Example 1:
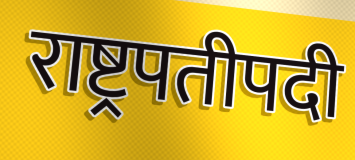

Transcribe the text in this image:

राष्ट्रपतीपदी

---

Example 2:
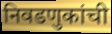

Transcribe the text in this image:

निवडणुकांची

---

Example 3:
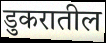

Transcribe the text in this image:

डुकरातील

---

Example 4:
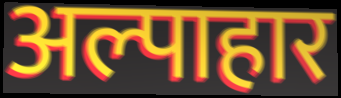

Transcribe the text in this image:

अल्पाहार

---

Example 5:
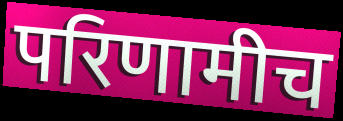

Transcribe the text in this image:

परिणामीच